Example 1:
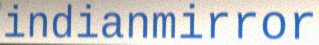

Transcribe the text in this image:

indianmirror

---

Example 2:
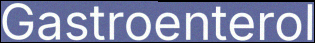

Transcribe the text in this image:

Gastroenterol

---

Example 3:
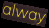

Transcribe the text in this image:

alway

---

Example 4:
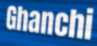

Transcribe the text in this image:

Ghanchi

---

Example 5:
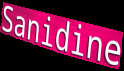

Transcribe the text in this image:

Sanidine